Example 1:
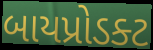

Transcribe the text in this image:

બાયપ્રોડક્ટ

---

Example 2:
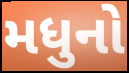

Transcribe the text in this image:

મધુનો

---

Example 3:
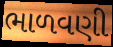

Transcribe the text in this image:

ભાળવણી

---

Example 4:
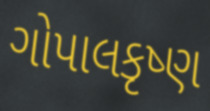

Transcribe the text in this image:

ગોપાલકૃષ્ણ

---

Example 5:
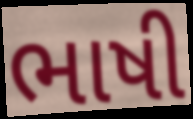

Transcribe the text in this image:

ભાષી